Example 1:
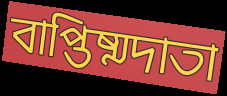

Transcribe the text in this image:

বাপ্তিষ্মদাতা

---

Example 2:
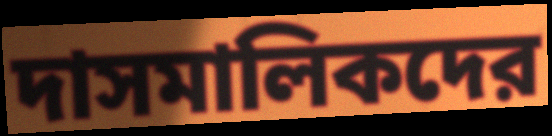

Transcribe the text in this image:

দাসমালিকদের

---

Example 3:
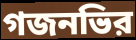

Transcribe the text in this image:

গজনভির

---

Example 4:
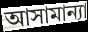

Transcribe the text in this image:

আসামান্যা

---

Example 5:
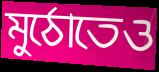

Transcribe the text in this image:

মুঠোতেও